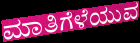
ಮಾತಿಗೆಳೆಯುವ